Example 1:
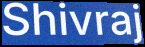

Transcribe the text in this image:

Shivraj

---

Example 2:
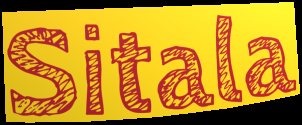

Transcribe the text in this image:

Sitala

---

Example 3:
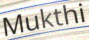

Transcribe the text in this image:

Mukthi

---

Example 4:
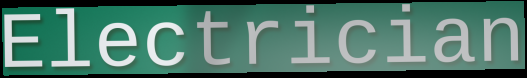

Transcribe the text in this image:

Electrician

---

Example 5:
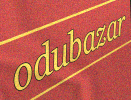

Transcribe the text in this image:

odubazar